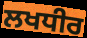
ਲਖਧੀਰ